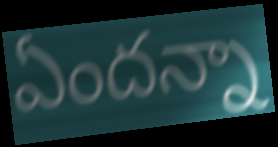
ఏందన్నా